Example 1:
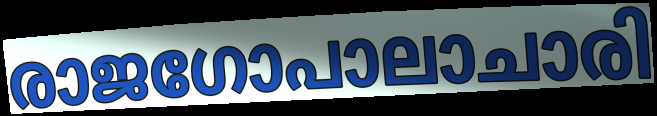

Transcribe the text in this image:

രാജഗോപാലാചാരി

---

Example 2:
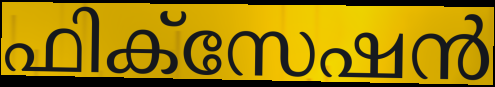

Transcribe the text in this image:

ഫിക്സേഷൻ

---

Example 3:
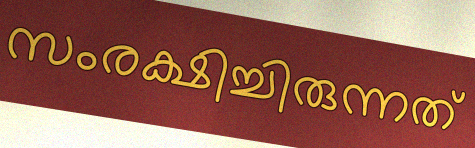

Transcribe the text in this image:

സംരക്ഷിച്ചിരുന്നത്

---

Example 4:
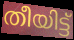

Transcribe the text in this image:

തീയിട്ട്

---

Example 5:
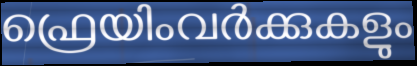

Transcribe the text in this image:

ഫ്രെയിംവർക്കുകളും